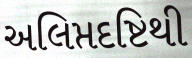
અલિપ્તદષ્ટિથી